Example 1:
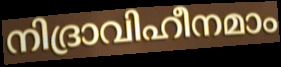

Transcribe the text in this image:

നിദ്രാവിഹീനമാം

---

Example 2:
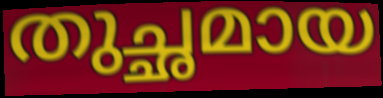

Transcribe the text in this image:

തുച്ഛമായ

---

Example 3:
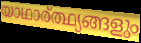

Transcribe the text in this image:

യാഥാര്ത്ഥ്യങ്ങളും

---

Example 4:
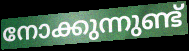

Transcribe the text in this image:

നോക്കുന്നുണ്ട്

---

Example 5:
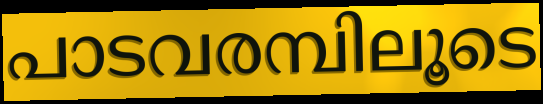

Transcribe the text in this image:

പാടവരമ്പിലൂടെ